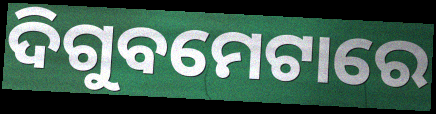
ଦିଗୁବମେଟାରେ